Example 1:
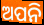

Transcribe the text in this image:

ଅପନି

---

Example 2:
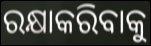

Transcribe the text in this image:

ରକ୍ଷାକରିବାକୁ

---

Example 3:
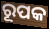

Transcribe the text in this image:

ରୂପକ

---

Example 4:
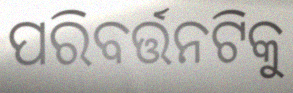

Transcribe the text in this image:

ପରିବର୍ତ୍ତନଟିକୁ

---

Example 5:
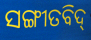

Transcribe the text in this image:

ସଙ୍ଗୀତବିଦ୍